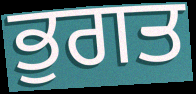
ਭੁਗਤ